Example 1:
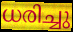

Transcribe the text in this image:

ധരിച്ചു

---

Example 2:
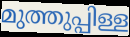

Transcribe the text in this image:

മുത്തുപ്പിള്ള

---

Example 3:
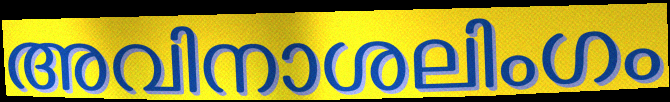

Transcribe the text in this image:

അവിനാശലിംഗം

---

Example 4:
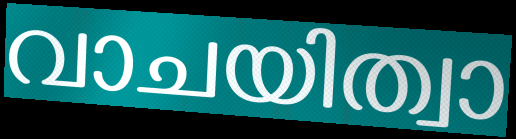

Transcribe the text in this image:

വാചയിത്വാ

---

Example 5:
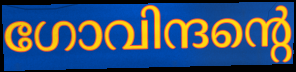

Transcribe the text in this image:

ഗോവിന്ദന്റെ